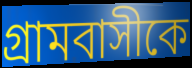
গ্রামবাসীকে